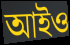
আইও